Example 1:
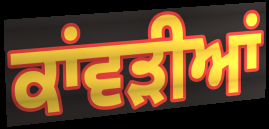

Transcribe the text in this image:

ਕਾਂਵੜੀਆਂ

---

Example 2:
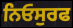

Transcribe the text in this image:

ਨਿਓਸੁਰਫ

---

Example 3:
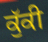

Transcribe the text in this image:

ਕੁੱਕੀ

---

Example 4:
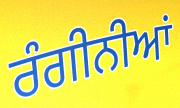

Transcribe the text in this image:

ਰੰਗੀਨੀਆਂ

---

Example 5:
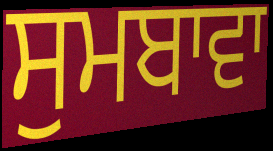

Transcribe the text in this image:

ਸੁਮਬਾਵਾ